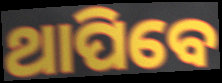
ଥାପିବେ